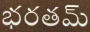
భరతమ్